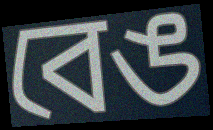
বেঙ